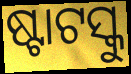
ଷ୍ଟାଟସ୍କୁ